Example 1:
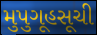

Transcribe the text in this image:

મુપુગૂહસૂચી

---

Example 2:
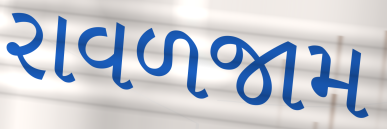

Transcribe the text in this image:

રાવળજામ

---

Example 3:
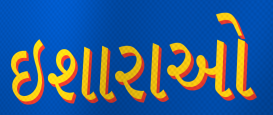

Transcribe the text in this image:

ઇશારાઓ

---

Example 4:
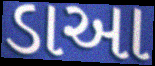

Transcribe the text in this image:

ડાઆ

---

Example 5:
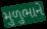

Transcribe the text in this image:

મુળુભાને